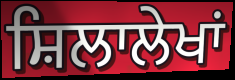
ਸ਼ਿਲਾਲੇਖਾਂ